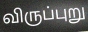
விருப்புறு